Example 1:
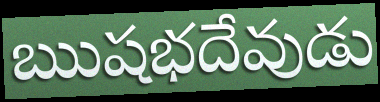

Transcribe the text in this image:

ఋషభదేవుడు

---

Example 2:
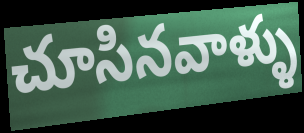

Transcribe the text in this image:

చూసినవాళ్ళు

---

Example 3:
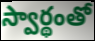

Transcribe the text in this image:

స్వార్థంతో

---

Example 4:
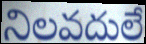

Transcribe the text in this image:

నిలవదులే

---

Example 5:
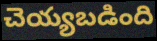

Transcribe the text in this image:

చెయ్యబడింది